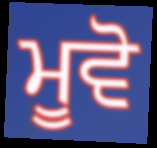
ਮੂਵੋ